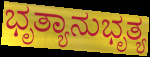
ಭೃತ್ಯಾನುಭೃತ್ಯ